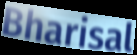
Bharisal